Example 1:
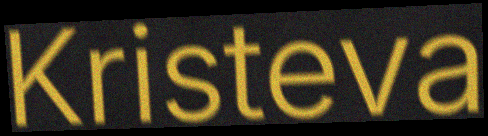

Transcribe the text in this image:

Kristeva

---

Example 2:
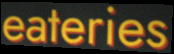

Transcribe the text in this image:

eateries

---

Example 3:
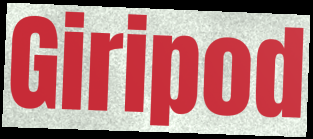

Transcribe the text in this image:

Giripod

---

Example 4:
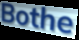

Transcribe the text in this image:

Bothe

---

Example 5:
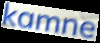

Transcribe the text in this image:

kamne